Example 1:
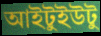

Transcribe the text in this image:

আইটুইউটু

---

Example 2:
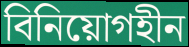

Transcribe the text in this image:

বিনিয়োগহীন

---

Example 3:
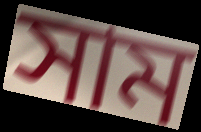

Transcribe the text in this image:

সাম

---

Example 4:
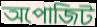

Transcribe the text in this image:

অপোজিট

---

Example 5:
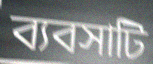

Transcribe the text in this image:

ব্যবসাটি